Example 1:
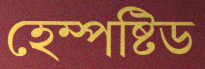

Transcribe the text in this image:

হেম্পষ্টিড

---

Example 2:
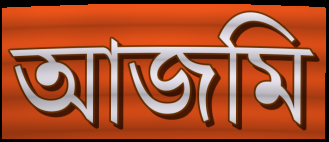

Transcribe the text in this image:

আজমি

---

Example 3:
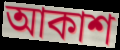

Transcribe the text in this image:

আকাশ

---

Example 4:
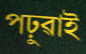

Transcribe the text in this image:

পঢ়ুৱাই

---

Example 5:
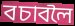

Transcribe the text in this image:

বচাবলৈ